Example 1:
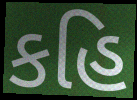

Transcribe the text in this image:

કહિ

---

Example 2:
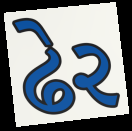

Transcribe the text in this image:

ઢેર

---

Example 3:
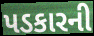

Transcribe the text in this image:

પડકારની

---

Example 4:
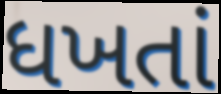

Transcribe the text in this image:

ધખતાં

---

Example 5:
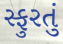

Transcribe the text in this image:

સ્ફુરતું